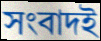
সংবাদই